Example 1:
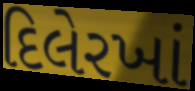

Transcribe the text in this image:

દિલેરખાં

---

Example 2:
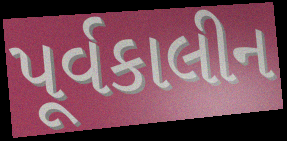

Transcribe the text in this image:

પૂર્વકાલીન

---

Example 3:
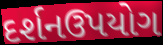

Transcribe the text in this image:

દર્શનઉપયોગ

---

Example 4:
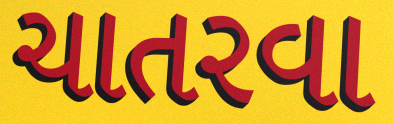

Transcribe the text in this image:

ચાતરવા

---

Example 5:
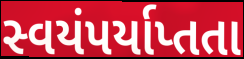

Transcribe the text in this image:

સ્વયંપર્યાપ્તતા